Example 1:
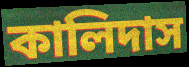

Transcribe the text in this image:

কালিদাস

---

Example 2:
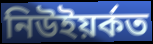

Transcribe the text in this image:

নিউইয়ৰ্কত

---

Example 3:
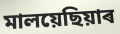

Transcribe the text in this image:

মালয়েছিয়াৰ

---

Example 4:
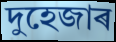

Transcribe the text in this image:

দুহেজাৰ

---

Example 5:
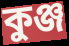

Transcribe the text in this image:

কুঞ্জ